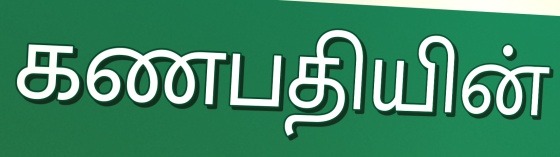
கணபதியின்